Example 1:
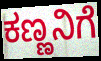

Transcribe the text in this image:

ಕಣ್ಣನಿಗೆ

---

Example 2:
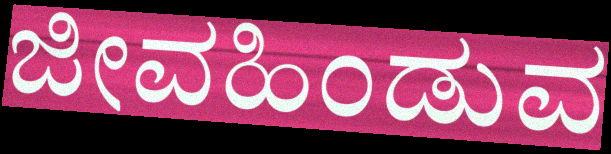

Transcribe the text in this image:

ಜೀವಹಿಂಡುವ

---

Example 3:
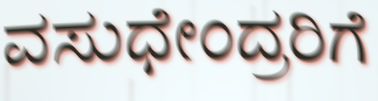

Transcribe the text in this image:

ವಸುಧೇಂದ್ರರಿಗೆ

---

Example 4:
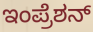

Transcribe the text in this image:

ಇಂಪ್ರೆಶನ್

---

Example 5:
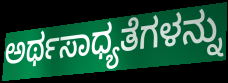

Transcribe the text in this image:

ಅರ್ಥಸಾಧ್ಯತೆಗಳನ್ನು